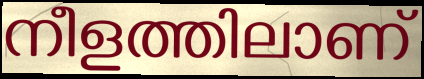
നീളത്തിലാണ്